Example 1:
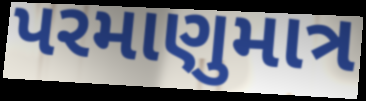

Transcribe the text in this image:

પરમાણુમાત્ર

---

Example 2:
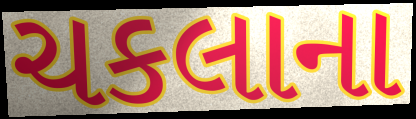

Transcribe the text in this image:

ચકલાના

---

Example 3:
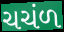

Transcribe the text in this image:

ચચંળ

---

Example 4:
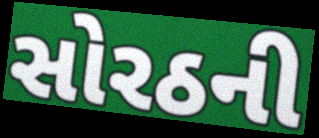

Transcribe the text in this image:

સોરઠની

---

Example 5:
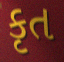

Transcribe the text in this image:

કૃત